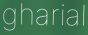
gharial